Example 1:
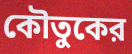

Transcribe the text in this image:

কৌতুকের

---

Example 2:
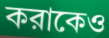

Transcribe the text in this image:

করাকেও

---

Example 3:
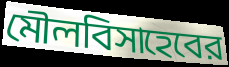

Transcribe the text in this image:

মৌলবিসাহেবের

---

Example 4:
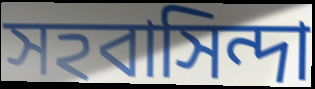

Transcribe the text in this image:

সহবাসিন্দা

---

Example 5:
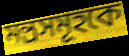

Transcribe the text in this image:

মন্ত্রসমূহকে